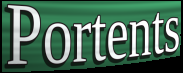
Portents